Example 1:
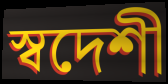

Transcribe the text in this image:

স্বদেশী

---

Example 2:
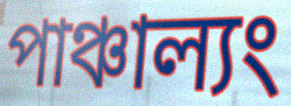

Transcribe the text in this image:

পাঞ্চাল্যং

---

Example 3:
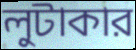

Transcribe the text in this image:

লুটাকার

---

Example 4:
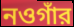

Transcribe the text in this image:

নওগাঁর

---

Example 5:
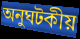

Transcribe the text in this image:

অনুঘটকীয়